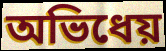
অভিধেয়